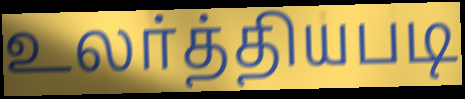
உலர்த்தியபடி